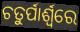
ଚତୁର୍ପାର୍ଶ୍ୱରେ